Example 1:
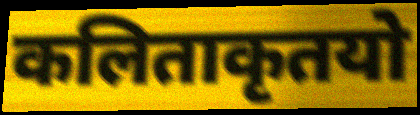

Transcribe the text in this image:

कलिताकृतयो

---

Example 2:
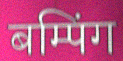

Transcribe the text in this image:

बम्पिंग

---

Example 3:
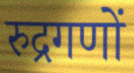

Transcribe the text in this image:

रुद्रगणों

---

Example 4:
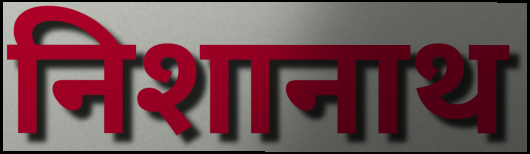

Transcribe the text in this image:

निशानाथ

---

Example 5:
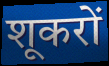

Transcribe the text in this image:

शूकरों